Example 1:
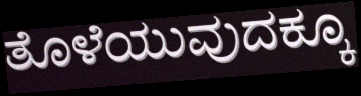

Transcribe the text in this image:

ತೊಳೆಯುವುದಕ್ಕೂ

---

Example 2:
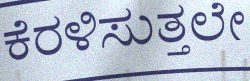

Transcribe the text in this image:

ಕೆರಳಿಸುತ್ತಲೇ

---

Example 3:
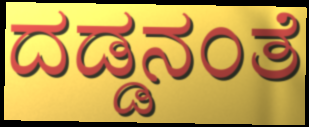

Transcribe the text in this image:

ದಡ್ಡನಂತೆ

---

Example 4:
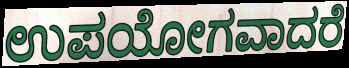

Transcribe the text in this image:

ಉಪಯೋಗವಾದರೆ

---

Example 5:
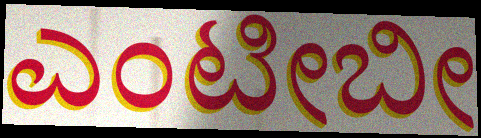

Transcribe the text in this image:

ಎಂಟೀಬೀ